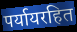
पर्यायरहित